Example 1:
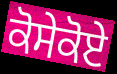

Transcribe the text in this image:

ਕੋਸੇਕੋਏ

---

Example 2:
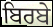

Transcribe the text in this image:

ਬਿਰਬੇ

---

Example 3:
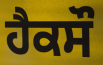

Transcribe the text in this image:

ਹੈਕਸੌ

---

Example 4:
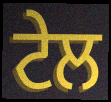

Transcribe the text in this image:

ਟੇਲ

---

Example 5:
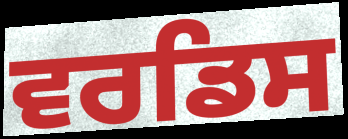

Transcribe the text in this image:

ਵਰਡਿਸ